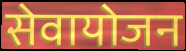
सेवायोजन